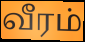
வீரம்